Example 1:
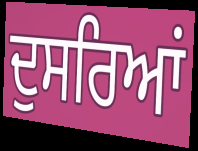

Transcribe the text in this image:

ਦੁਸਰਿਆਂ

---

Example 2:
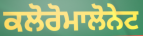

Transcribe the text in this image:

ਕਲੋਰੋਮਾਲੋਨੇਟ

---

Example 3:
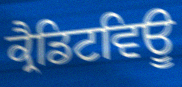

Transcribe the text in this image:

ਕ੍ਰੈਡਿਟਵਿਊ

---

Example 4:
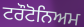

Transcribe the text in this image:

ਟਰੌਟੋਨਿਅਮ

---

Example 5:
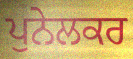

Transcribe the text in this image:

ਪੁਨੇਲਕਰ